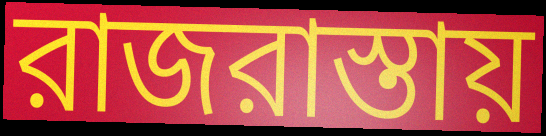
রাজরাস্তায়